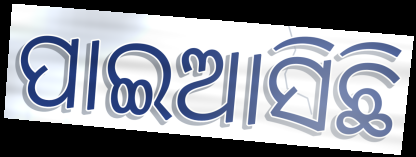
ପାଇଆସିଛି